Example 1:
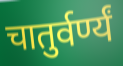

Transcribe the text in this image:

चातुर्वर्ण्यं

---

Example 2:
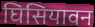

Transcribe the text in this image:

घिसियावन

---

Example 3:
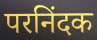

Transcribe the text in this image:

परनिंदक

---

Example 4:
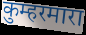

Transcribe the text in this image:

कुम्हरमारा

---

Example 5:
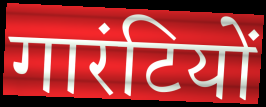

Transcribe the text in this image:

गारंटियों